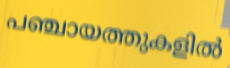
പഞ്ചായത്തുകളിൽ